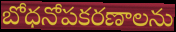
బోధనోపకరణాలను